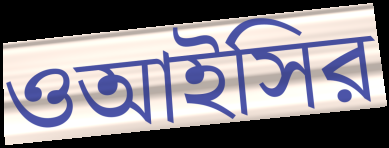
ওআইসির